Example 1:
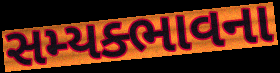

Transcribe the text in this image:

સમ્યક્ભાવના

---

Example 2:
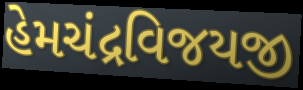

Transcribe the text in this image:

હેમચંદ્રવિજયજી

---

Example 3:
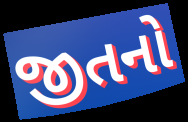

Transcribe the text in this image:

જીતનો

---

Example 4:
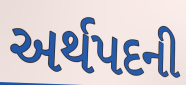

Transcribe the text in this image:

અર્થપદની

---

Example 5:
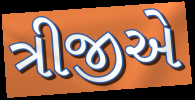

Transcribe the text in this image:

ત્રીજીએ